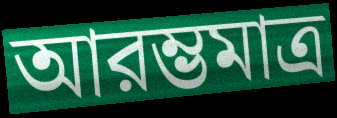
আরম্ভমাত্র